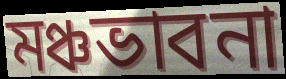
মঞ্চভাবনা